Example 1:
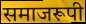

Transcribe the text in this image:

समाजरूपी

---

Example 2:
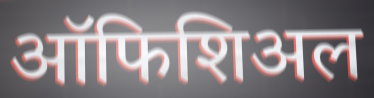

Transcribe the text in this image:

ऑफिशिअल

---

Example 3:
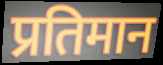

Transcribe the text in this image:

प्रतिमान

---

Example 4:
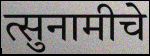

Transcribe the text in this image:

त्सुनामीचे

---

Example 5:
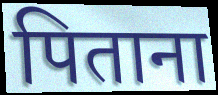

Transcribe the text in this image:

पिताना